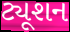
ટ્યૂશન